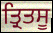
ਤ੍ਰਿਤਸੂ